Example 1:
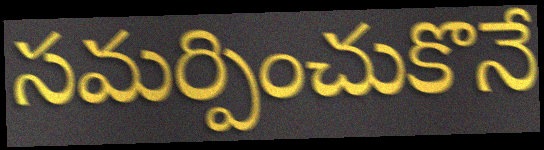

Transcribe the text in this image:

సమర్పించుకొనే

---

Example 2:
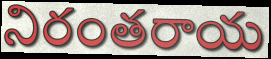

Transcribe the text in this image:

నిరంతరాయ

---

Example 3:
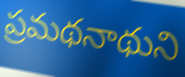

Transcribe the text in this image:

ప్రమథనాథుని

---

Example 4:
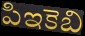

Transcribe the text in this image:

పిఇకెబి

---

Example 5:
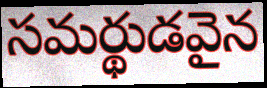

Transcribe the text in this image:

సమర్థుడవైన